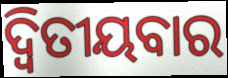
ଦ୍ୱିତୀୟବାର